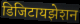
डिजिटायझेशन